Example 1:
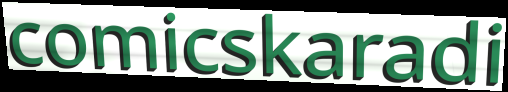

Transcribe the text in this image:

comicskaradi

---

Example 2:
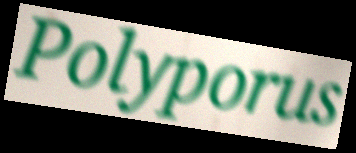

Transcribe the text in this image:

Polyporus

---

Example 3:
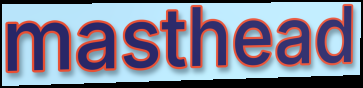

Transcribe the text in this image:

masthead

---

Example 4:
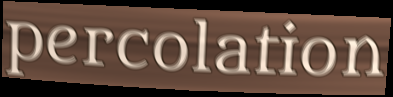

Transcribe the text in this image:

percolation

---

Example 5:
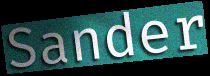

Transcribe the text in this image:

Sander